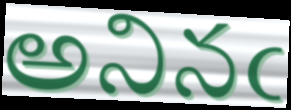
అనినఁ